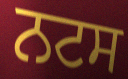
ਨਟਸ